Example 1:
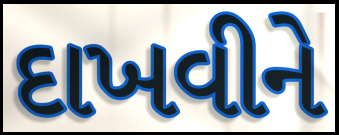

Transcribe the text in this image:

દાખવીને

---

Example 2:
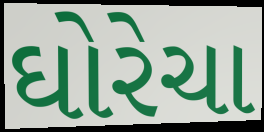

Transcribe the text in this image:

ઘોરેચા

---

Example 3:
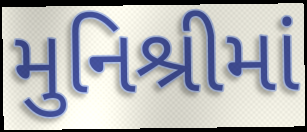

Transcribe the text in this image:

મુનિશ્રીમાં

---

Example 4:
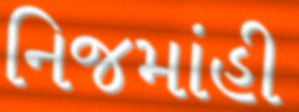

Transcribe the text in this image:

નિજમાંહી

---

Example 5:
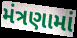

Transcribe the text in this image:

મંત્રણામાં